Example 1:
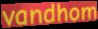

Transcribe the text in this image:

vandhom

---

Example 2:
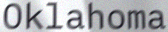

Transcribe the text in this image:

Oklahoma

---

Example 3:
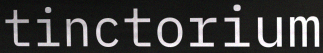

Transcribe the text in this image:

tinctorium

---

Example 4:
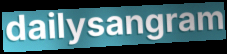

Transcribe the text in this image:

dailysangram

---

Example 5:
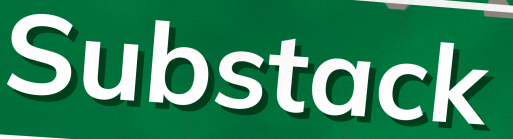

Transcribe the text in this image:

Substack